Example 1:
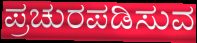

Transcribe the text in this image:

ಪ್ರಚುರಪಡಿಸುವ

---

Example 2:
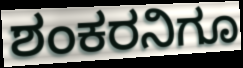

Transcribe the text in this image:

ಶಂಕರನಿಗೂ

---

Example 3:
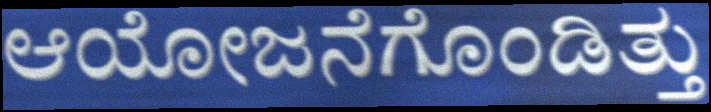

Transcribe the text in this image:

ಆಯೋಜನೆಗೊಂಡಿತ್ತು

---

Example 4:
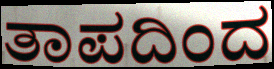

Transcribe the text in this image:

ತಾಪದಿಂದ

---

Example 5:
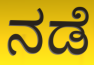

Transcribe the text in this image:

ನಡೆ